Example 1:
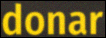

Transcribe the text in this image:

donar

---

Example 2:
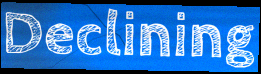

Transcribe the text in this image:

Declining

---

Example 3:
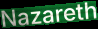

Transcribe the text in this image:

Nazareth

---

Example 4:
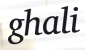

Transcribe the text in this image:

ghali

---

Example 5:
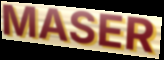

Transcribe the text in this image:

MASER